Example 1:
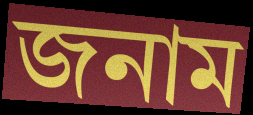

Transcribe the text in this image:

জনাম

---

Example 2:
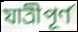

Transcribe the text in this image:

যাত্রীপূর্ণ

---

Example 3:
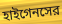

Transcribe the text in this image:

হাইগেনসের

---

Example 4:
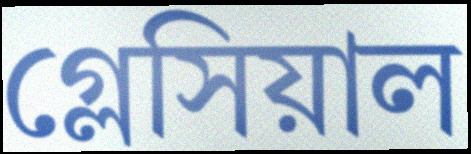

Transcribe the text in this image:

গ্লেসিয়াল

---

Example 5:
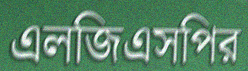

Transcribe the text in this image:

এলজিএসপির